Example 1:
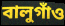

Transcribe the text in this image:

বালুগাঁও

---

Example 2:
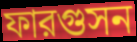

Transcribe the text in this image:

ফারগুসন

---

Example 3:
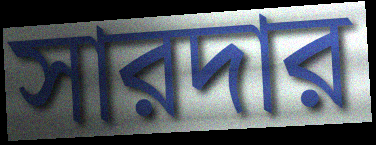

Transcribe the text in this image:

সারদার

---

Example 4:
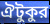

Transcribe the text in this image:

ঐটুকুর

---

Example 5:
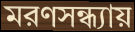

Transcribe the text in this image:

মরণসন্ধ্যায়